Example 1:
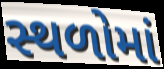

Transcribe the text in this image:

સ્થળોમાં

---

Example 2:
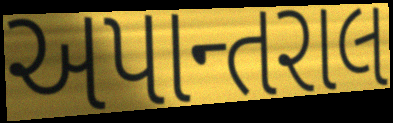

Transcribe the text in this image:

અપાન્તરાલ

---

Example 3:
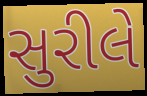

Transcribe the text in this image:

સુરીલે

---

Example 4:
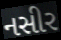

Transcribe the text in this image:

નસીર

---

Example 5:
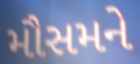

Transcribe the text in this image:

મૌસમને